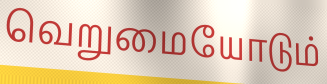
வெறுமையோடும்